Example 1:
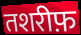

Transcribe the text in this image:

तशरीफ़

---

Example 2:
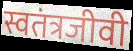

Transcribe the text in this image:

स्वतंत्रजीवी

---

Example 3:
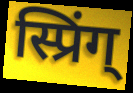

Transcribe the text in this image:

स्प्रिंग्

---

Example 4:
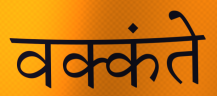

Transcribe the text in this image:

वक्कंते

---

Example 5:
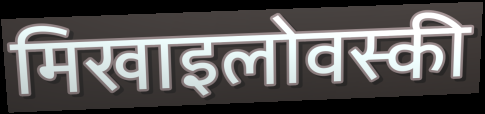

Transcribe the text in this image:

मिखाइलोवस्की